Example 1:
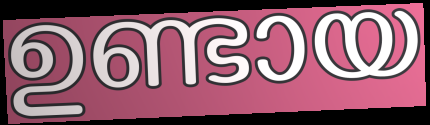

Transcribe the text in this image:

ഉണ്ടായ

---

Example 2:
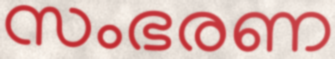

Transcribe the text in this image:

സംഭരണ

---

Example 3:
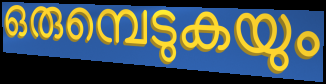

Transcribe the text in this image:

ഒരുമ്പെടുകയും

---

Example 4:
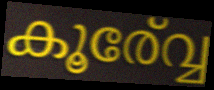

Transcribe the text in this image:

കൂര്വ്വേ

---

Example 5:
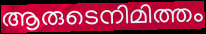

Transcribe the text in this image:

ആരുടെനിമിത്തം